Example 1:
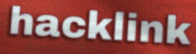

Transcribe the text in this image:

hacklink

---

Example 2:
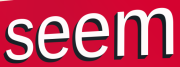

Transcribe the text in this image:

seem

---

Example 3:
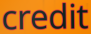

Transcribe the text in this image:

credit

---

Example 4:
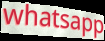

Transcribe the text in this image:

whatsapp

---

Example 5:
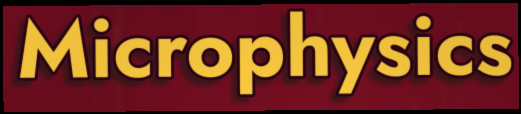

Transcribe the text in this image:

Microphysics